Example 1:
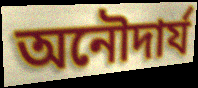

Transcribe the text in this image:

অনৌদার্য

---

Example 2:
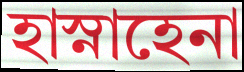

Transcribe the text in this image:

হাস্নাহেনা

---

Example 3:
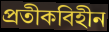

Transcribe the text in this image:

প্রতীকবিহীন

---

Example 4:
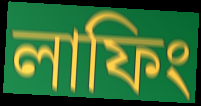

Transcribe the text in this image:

লাফিং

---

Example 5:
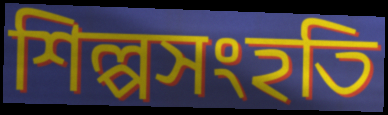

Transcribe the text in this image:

শিল্পসংহতি